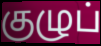
குழுப்